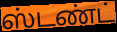
ஸ்டண்ட்